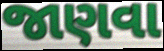
જાણવા